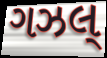
ગઝલ્